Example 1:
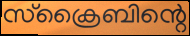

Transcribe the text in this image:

സ്ക്രൈബിന്റെ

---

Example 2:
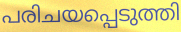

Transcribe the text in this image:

പരിചയപ്പെടുത്തി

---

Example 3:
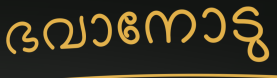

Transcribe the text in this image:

ഭവാനോടു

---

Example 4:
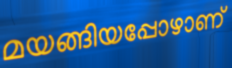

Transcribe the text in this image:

മയങ്ങിയപ്പോഴാണ്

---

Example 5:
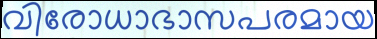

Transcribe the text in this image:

വിരോധാഭാസപരമായ